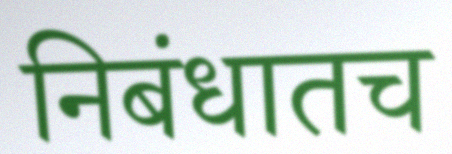
निबंधातच